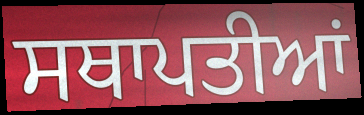
ਸਥਾਪਤੀਆਂ